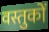
वस्तुकों